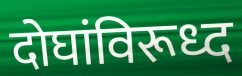
दोघांविरूध्द